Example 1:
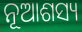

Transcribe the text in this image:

ନୂଆଶସ୍ୟ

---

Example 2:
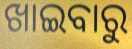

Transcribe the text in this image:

ଖାଇବାରୁ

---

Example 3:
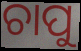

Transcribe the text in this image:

ଚାପୁ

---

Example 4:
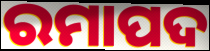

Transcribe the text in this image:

ରମାପଦ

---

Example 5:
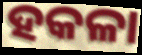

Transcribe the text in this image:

ହକଳା